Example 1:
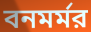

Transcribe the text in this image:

বনমর্মর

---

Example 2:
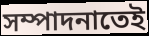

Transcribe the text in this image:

সম্পাদনাতেই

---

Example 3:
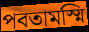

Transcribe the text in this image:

পবতামস্মি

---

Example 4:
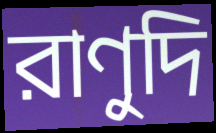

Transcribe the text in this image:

রাণুদি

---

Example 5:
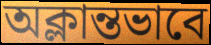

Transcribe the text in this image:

অক্লান্তভাবে